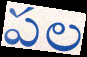
పల